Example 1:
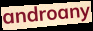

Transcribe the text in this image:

androany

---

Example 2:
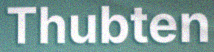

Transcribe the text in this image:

Thubten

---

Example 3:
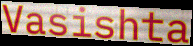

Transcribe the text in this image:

Vasishta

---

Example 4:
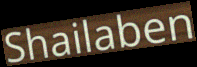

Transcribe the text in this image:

Shailaben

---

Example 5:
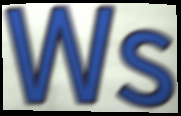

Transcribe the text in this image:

Ws